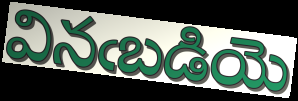
వినఁబడియె